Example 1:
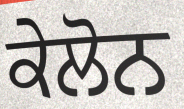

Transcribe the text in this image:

ਕੇਲੋਨ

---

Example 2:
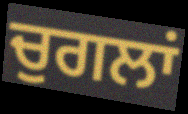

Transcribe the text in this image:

ਚੁਗਲਾਂ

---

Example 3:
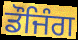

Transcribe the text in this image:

ਡੌਜਿੰਗ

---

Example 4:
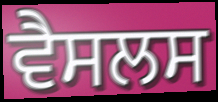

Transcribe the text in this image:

ਵੈਸਲਸ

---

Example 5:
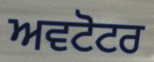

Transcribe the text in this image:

ਅਵਟੋਟਰ